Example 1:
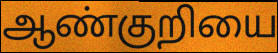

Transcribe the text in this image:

ஆண்குறியை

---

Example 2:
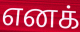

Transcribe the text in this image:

எனக்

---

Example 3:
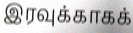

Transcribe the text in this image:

இரவுக்காகக்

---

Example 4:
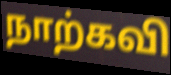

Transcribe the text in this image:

நாற்கவி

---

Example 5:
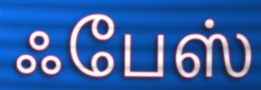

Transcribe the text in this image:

ஃபேஸ்